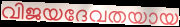
വിജയദേവതയായ